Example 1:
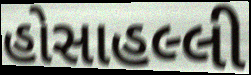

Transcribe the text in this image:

હોસાહલ્લી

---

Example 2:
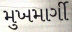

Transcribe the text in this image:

મુખમાર્ગી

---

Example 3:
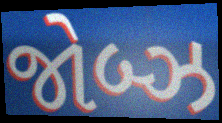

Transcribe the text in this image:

જોબ્ઝ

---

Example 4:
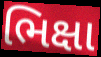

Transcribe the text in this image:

ભિક્ષા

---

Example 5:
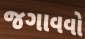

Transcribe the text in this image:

જગાવવો